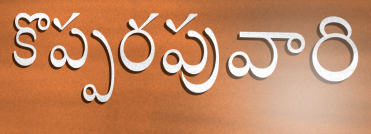
కొప్పరపువారి